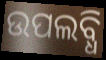
ଉପଲବ୍ଧି